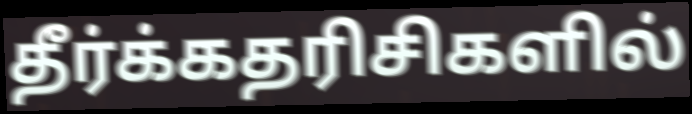
தீர்க்கதரிசிகளில்